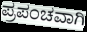
ಪ್ರಪಂಚವಾಗಿ